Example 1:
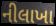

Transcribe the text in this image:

નીલાખા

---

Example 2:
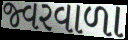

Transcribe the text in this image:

જ્વરવાળા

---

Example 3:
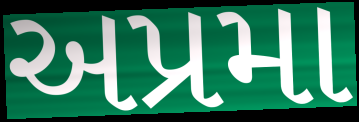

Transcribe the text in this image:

અપ્રમા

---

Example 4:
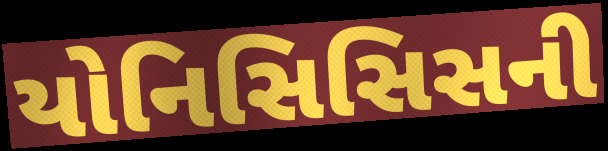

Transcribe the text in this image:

યોનિસિસિસની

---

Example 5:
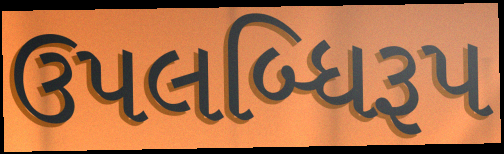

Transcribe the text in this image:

ઉપલબ્ધિરૂપ